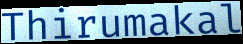
Thirumakal